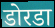
डोरडा